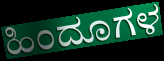
ಹಿಂದೂಗಳ